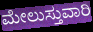
ಮೇಲುಸ್ತುವಾರಿ